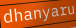
dhanyaru